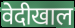
वेदीखाल